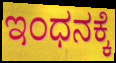
ಇಂಧನಕ್ಕೆ